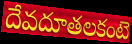
దేవదూతలకంటె